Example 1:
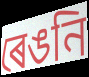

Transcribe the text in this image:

ৰেঙনি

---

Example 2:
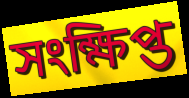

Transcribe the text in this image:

সংক্ষিপ্ত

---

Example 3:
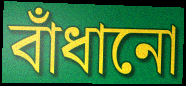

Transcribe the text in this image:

বাঁধানো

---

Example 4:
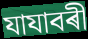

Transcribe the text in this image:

যাযাবৰী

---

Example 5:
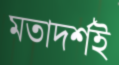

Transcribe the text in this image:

মতাদৰ্শই